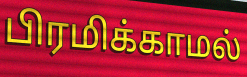
பிரமிக்காமல்